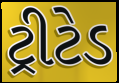
ટ્રીટેડ